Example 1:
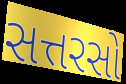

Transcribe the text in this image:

સત્તરસો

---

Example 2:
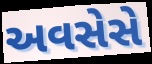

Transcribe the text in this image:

અવસેસે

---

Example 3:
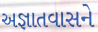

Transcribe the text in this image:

અજ્ઞાતવાસને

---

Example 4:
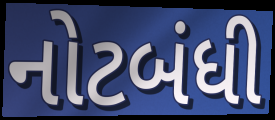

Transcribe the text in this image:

નોટબંધી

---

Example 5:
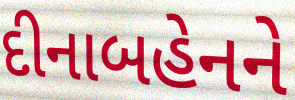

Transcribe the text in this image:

દીનાબહેનને